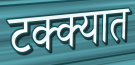
टक्क्यात